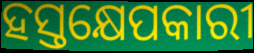
ହସ୍ତକ୍ଷେପକାରୀ